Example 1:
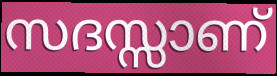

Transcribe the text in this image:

സദസ്സാണ്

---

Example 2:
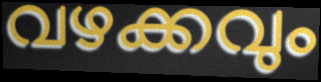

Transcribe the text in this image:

വഴക്കവും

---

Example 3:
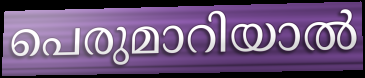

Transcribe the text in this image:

പെരുമാറിയാൽ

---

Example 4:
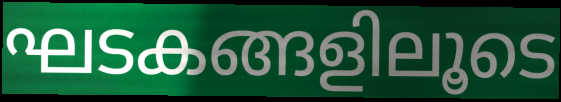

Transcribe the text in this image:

ഘടകങ്ങളിലൂടെ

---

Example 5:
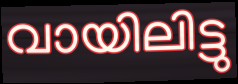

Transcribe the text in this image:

വായിലിട്ടു